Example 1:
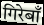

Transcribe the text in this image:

गिरेबाँ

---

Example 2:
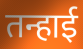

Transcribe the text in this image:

तन्हाई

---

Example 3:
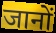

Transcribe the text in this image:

जानों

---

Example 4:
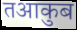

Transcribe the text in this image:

तआकुब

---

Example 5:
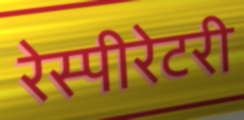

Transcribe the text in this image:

रेस्पीरेटरी